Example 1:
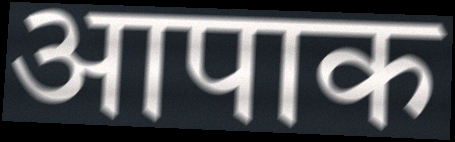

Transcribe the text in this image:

आपाक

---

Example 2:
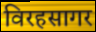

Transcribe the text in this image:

विरहसागर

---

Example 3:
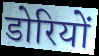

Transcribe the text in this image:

डोरियों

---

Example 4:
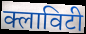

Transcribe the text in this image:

क्लाविटी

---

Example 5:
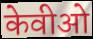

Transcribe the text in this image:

केवीओ